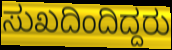
ಸುಖದಿಂದಿದ್ದರು